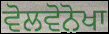
ਵੋਲਵੋਨੋਖਾ